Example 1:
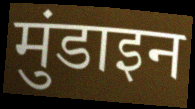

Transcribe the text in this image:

मुंडाइन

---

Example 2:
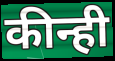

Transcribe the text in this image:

कीन्ही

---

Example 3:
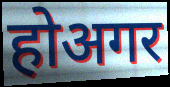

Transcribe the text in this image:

होअगर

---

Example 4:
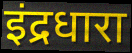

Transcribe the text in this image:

इंद्रधारा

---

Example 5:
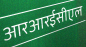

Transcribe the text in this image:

आरआरईसीएल